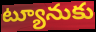
ట్యూనుకు